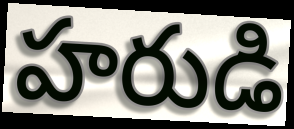
హరుడి